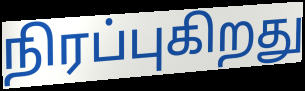
நிரப்புகிறது